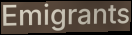
Emigrants